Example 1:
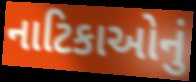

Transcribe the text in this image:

નાટિકાઓનું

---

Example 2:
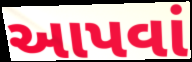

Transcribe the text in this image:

આપવાં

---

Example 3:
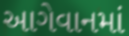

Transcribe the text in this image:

આગેવાનમાં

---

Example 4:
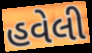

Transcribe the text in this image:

હવેલી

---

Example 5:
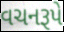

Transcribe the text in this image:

વચનરૂપે